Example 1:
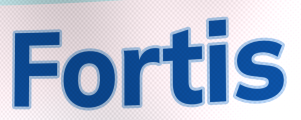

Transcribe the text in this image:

Fortis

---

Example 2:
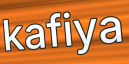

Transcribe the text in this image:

kafiya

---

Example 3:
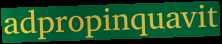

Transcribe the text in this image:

adpropinquavit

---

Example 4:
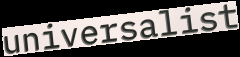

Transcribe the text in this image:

universalist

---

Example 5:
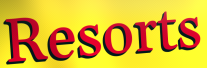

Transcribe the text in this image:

Resorts